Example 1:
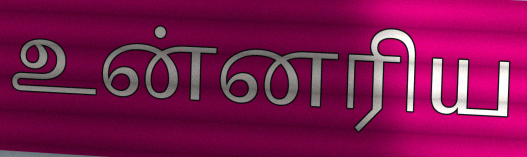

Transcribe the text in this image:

உன்னரிய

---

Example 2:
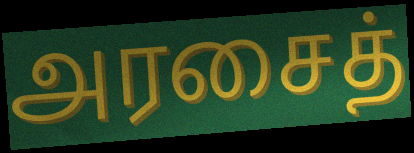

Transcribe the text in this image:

அரசைத்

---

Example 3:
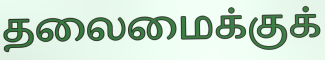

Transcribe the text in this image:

தலைமைக்குக்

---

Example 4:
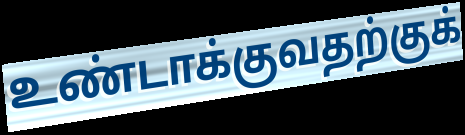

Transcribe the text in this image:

உண்டாக்குவதற்குக்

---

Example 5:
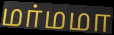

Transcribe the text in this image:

மர்மமா